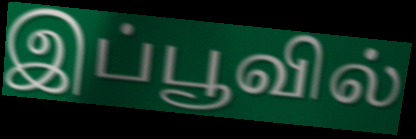
இப்பூவில்